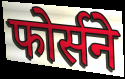
फोर्सने